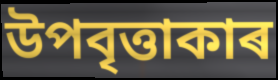
উপবৃত্তাকাৰ